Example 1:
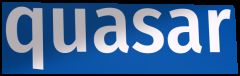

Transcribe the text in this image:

quasar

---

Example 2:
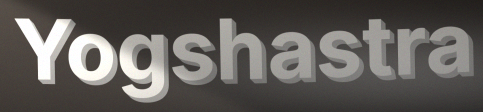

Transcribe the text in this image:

Yogshastra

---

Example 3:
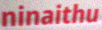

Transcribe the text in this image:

ninaithu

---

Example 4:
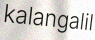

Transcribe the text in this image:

kalangalil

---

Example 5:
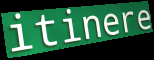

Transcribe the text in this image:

itinere